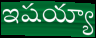
ఇషయ్యా